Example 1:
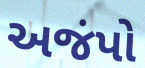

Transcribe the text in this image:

અજંપો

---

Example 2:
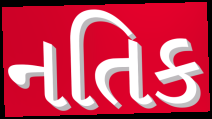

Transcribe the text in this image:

નતિક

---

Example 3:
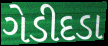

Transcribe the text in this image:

ગેડીદડા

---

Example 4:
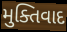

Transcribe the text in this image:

મુક્તિવાદ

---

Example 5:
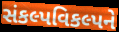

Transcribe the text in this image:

સંકલ્પવિકલ્પને